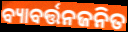
ବ୍ୟାବର୍ତ୍ତନଜନିତ